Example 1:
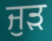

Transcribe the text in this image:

ਜੁੜ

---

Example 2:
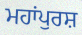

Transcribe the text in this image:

ਮਹਾਂਪੁਰਸ਼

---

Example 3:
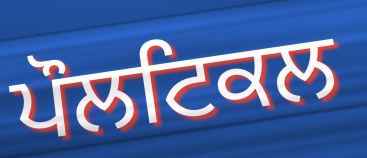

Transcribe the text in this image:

ਪੌਲਟਿਕਲ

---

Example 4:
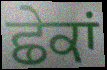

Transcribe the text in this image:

ਛੇਕਾਂ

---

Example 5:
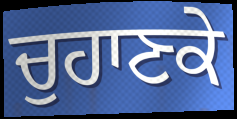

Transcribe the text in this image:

ਚੁਹਾਣਕੇ